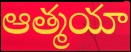
ఆత్మయా